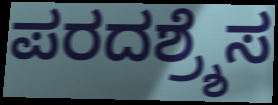
ಪರದಶ್ರ್ಶೆಸ